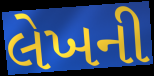
લેખની